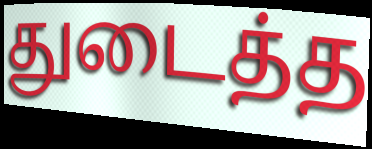
துடைத்த